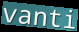
vanti